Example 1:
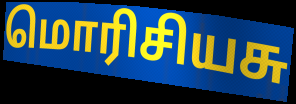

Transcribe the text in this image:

மொரிசியசு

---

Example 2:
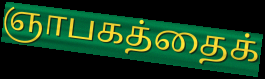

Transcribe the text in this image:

ஞாபகத்தைக்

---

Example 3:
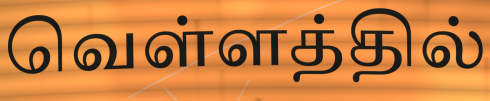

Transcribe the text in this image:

வெள்ளத்தில்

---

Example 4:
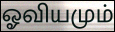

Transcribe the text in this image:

ஓவியமும்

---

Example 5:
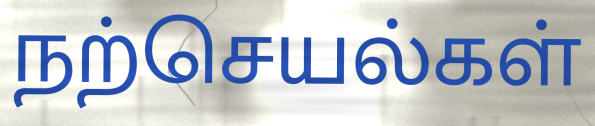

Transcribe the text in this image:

நற்செயல்கள்